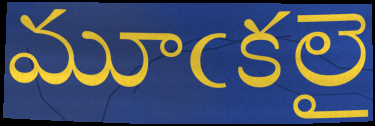
మూఁకలై